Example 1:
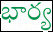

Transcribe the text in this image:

భార్య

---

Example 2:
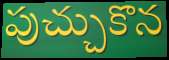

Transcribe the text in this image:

పుచ్చుకొన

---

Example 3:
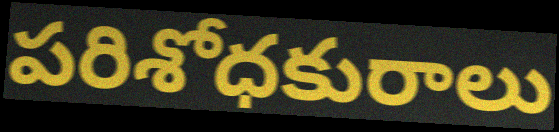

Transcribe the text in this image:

పరిశోధకురాలు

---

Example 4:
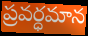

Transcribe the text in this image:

ప్రవర్ధమాన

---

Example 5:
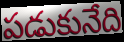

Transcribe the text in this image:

పడుకునేది